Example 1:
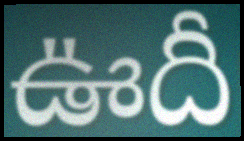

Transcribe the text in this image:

ఊదీ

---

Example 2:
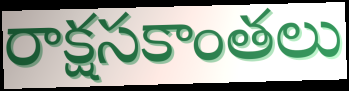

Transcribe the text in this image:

రాక్షసకాంతలు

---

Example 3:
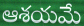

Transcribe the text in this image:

ఆశయమే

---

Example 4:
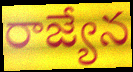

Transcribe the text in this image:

రాజ్యేన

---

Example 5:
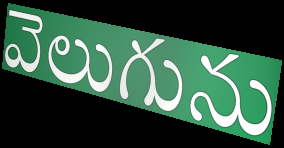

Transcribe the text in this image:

వెలుగును